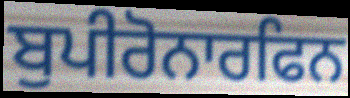
ਬੁਪੀਰੋਨਾਰਫਿਨ